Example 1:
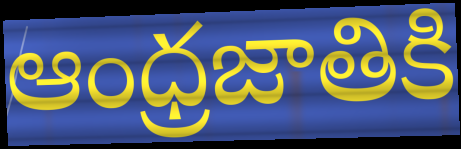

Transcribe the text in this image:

ఆంధ్రజాతికి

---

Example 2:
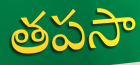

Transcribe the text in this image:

తపసా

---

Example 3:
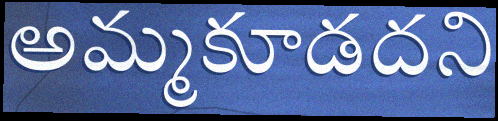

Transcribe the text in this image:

అమ్మకూడదని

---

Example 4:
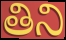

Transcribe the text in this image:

తిని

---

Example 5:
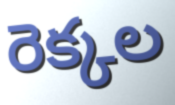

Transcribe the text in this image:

రెక్కల